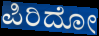
ಪಿರಿದೋ